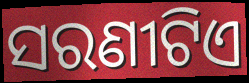
ସରଣୀଟିଏ